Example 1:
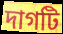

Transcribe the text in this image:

দাগটি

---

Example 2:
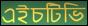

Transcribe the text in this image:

এইচটিভি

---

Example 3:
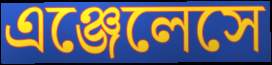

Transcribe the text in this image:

এঞ্জেলেসে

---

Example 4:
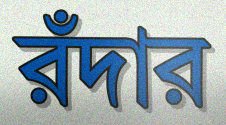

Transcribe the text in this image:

রঁদার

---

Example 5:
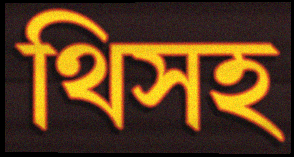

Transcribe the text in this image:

থিসহ